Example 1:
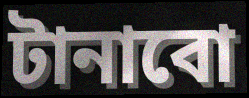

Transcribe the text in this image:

টানাবো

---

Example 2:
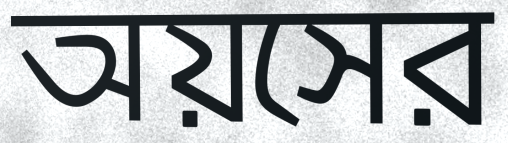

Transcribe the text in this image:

অয়সের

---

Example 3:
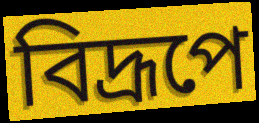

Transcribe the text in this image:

বিদ্রূপে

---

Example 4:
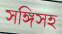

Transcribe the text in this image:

সঙ্গিসহ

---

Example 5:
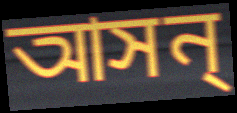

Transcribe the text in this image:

আসন্